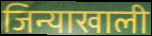
जिन्याखाली